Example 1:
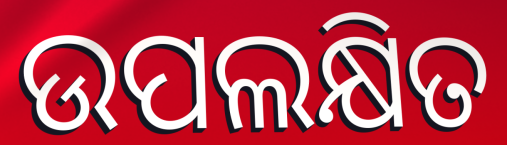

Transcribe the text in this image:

ଉପଲକ୍ଷିତ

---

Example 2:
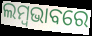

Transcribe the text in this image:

ଲମ୍ବଭାବରେ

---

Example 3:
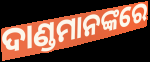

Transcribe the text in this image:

ଦାଣ୍ଡମାନଙ୍କରେ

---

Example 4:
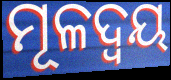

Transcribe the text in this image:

ମୂଳଦ୍ୱୟ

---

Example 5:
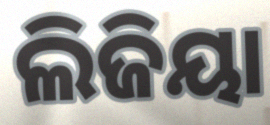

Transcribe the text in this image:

ଲିଜିୟା